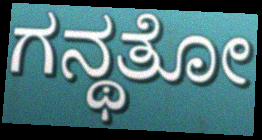
ಗನ್ಥತೋ